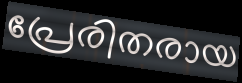
പ്രേരിതരായ